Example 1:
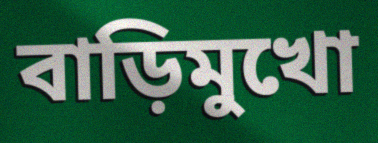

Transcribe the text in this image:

বাড়িমুখো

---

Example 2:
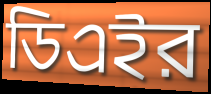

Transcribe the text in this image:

ডিএইর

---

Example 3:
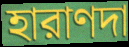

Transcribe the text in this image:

হারাণদা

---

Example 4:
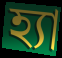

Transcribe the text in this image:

হ্যা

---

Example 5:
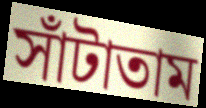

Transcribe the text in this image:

সাঁটাতাম